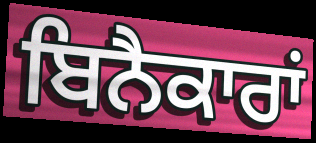
ਬਿਨੈਕਾਰਾਂ